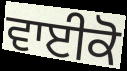
ਵਾਈਕੋ